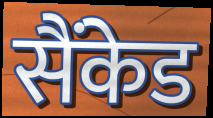
सैंकेड